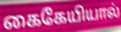
கைகேயியால்